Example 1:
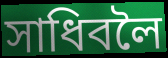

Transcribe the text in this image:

সাধিবলৈ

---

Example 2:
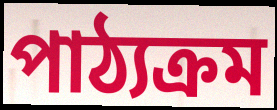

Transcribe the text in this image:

পাঠ্যক্ৰম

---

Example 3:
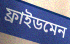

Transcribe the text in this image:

ফ্ৰাইডমেন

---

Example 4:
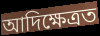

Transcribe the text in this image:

আদিক্ষেত্ৰত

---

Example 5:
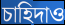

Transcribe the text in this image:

চাহিদাও